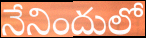
నేనిందులో